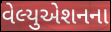
વેલ્યુએશનના